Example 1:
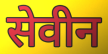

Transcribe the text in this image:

सेवीन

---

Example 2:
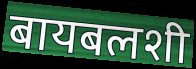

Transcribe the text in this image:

बायबलशी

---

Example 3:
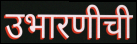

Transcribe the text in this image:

उभारणीची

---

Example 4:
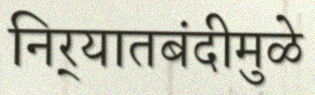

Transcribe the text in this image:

निर्यातबंदीमुळे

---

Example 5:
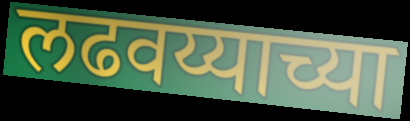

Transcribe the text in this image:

लढवय्याच्या